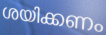
ശയിക്കണം